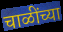
चाळींच्या